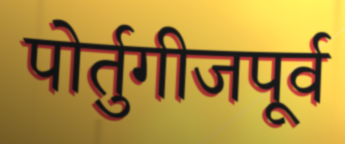
पोर्तुगीजपूर्व